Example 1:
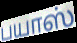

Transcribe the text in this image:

பயாஸ்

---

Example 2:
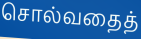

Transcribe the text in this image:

சொல்வதைத்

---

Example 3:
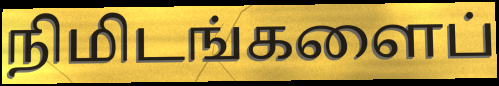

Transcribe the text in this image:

நிமிடங்களைப்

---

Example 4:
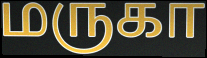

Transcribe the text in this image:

மருகா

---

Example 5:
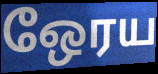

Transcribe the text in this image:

ஒேரய